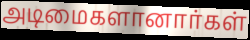
அடிமைகளானார்கள்